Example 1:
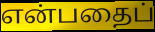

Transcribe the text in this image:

என்பதைப்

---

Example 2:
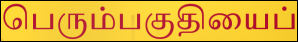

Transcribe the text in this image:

பெரும்பகுதியைப்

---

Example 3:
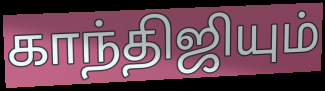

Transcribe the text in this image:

காந்திஜியும்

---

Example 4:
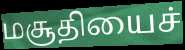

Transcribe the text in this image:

மசூதியைச்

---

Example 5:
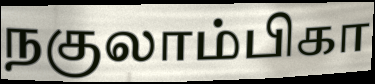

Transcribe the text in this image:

நகுலாம்பிகா